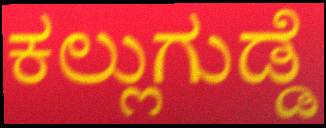
ಕಲ್ಲುಗುಡ್ಡೆ